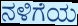
ನಳಿಗೆಯ